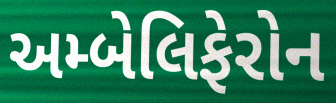
અમ્બેલિફેરોન